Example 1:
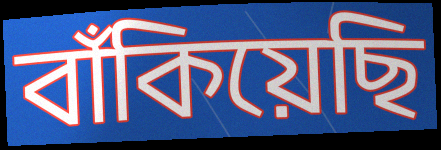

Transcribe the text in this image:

বাঁকিয়েছি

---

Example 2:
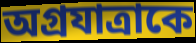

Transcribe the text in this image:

অগ্রযাত্রাকে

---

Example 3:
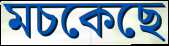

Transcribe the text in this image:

মচকেছে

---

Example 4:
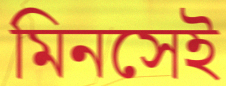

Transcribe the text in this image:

মিনসেই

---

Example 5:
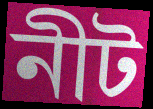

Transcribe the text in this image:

নীট